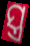
ସ୍ତ୍ର